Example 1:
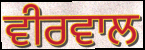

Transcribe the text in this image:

ਵੀਰਵਾਲ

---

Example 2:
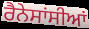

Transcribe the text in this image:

ਰੈਨੇਸਾਂਸੀਆਂ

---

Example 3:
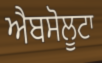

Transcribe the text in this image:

ਐਬਸੋਲੂਟਾ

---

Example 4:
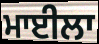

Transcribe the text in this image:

ਮਾਈਲਾ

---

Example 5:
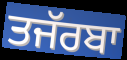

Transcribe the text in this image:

ਤਜੱਰਬਾ